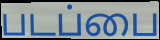
படப்பை